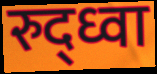
रुद्ध्वा